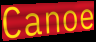
Canoe